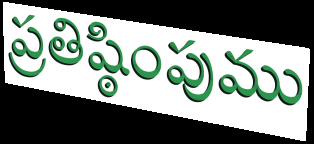
ప్రతిష్ఠింపుము